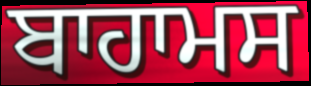
ਬਾਹਾਮਸ